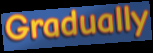
Gradually